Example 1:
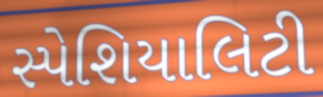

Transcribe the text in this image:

સ્પેશિયાલિટી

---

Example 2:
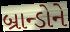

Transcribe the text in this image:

બ્રાન્ડોને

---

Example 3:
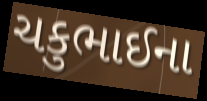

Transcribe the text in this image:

ચકુભાઈના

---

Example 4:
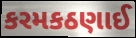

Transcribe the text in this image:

કરમકઠણાઈ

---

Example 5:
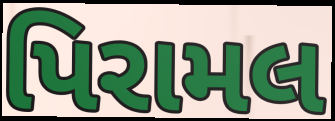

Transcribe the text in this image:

પિરામલ